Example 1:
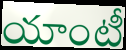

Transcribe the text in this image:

యాంటీ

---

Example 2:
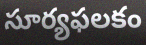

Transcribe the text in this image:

సూర్యఫలకం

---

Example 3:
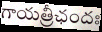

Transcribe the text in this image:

గాయత్రీఛందః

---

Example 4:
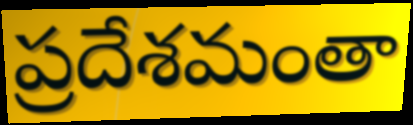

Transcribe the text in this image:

ప్రదేశమంతా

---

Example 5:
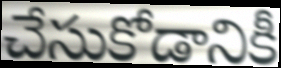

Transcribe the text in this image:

చేసుకోడానికీ